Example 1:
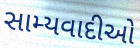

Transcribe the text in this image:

સામ્યવાદીઓ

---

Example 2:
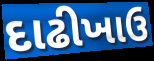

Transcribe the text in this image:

દાઢીખાઉ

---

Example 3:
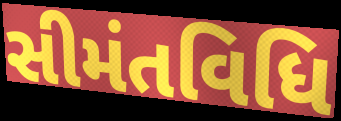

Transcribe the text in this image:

સીમંતવિધિ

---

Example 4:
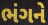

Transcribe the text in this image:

ભંગને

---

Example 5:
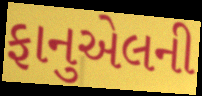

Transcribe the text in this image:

ફાનુએલની